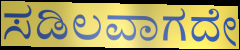
ಸಡಿಲವಾಗದೇ